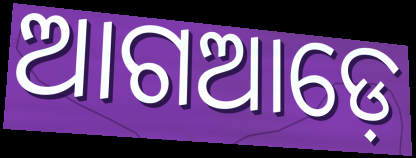
ଆଗଆଡ଼େ